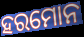
ହରମୋନ